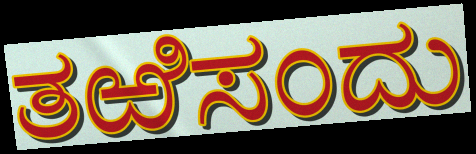
ತಱಿಸಂದು